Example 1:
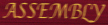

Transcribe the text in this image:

ASSEMBLY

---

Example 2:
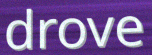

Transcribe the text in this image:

drove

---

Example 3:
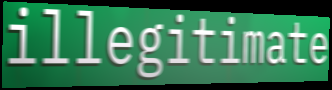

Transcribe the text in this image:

illegitimate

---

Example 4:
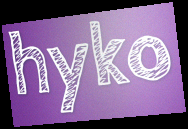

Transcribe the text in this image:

hyko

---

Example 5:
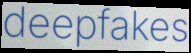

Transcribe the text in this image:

deepfakes